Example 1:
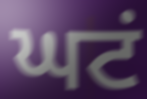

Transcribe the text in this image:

ਘਟਂ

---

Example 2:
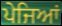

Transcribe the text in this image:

ਪੇਜਿਆਂ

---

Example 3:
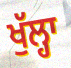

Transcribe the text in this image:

ਖੁੱਲ੍ਹਾ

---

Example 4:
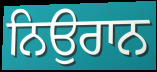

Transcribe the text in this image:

ਨਿਉਰਾਨ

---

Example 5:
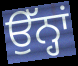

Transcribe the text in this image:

ਉੱਨ੍ਹਾਂ